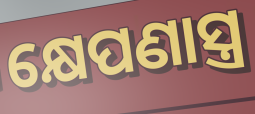
କ୍ଷେପଣାସ୍ତ୍ର